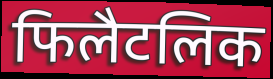
फिलैटलिक